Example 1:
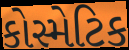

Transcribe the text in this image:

કોસ્મેટિક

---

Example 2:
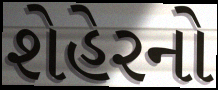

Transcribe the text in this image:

શેહેરનો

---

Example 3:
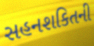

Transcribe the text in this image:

સહનશકિતની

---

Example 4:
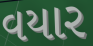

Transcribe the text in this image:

વયાર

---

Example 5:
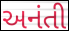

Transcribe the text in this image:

અનંતી